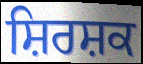
ਸ਼ਿਰਸ਼ਕ